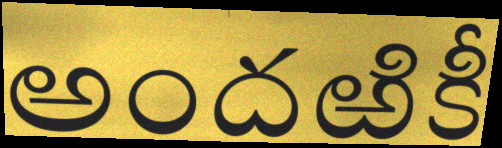
అందఱికీ